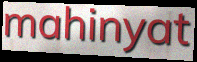
mahinyat